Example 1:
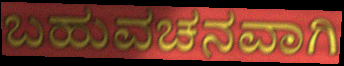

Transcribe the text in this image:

ಬಹುವಚನವಾಗಿ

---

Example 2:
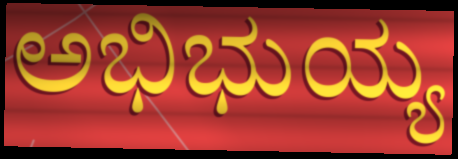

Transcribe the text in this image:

ಅಭಿಭುಯ್ಯ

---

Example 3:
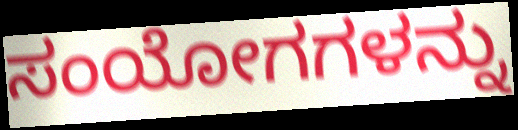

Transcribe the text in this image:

ಸಂಯೋಗಗಳನ್ನು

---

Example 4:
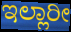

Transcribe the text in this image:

ಇಲ್ಲಾರೀ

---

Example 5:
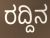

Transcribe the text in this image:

ರದ್ದಿನ